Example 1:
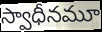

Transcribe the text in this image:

స్వాధీనమూ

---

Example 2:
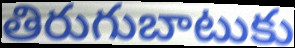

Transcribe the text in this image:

తిరుగుబాటుకు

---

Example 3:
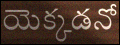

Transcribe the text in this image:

యెక్కడనో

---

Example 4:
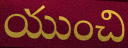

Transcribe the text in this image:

యుంచి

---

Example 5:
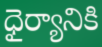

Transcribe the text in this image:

ధైర్యానికి